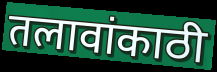
तलावांकाठी